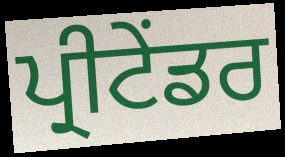
ਪ੍ਰੀਟੇਂਡਰ